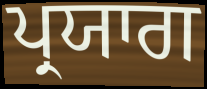
ਪ੍ਰਯਾਗ